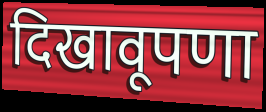
दिखावूपणा